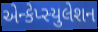
એન્કેપ્સ્યુલેશન